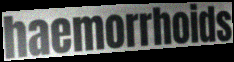
haemorrhoids